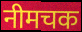
नीमचक